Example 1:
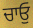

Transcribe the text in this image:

ਚਾਓੁ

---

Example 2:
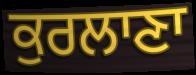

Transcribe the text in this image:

ਕੁਰਲਾਣਾ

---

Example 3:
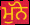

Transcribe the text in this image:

ਮੁੱਨੇ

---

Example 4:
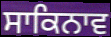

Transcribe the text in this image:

ਸਾਕਿਨਾਵ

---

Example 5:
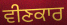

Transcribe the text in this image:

ਵੀਣਕਾਰ